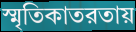
স্মৃতিকাতরতায়